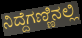
ನಿದ್ದೆಗಣ್ಣಿನಲ್ಲಿ